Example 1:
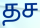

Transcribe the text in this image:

தச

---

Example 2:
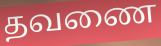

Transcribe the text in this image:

தவணை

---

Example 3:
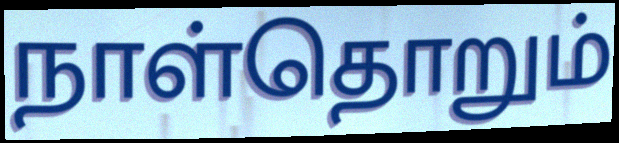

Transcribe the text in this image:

நாள்தொறும்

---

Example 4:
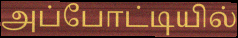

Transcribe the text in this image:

அப்போட்டியில்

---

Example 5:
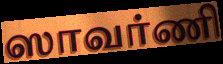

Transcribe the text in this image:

ஸாவர்ணி